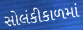
સોલંકીકાળમાં